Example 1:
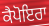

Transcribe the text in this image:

ਕੈਪੋਇਰਾ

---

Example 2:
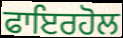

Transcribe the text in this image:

ਫਾਇਰਹੋਲ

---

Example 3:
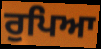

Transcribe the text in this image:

ਰੁਪਿਆ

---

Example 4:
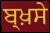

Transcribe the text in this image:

ਬ੍ਖ਼ਸੇ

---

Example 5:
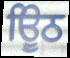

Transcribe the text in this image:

ਊਿਠ